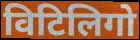
विटिलिगो